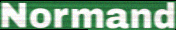
Normand